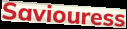
Saviouress